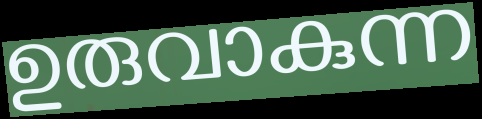
ഉരുവാകുന്ന